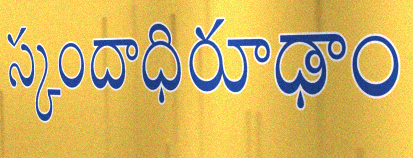
స్కందాధిరూఢాం